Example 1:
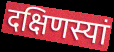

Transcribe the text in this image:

दक्षिणस्यां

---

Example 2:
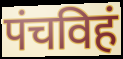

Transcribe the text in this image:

पंचविहं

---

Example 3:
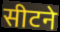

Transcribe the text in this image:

सीटने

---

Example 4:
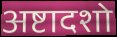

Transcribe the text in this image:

अष्टादशो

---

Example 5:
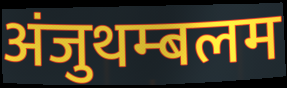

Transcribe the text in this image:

अंजुथम्बलम